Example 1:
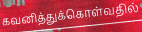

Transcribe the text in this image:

கவனித்துக்கொள்வதில்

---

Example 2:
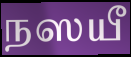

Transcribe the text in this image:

நஸயீ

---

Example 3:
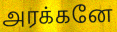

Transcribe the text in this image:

அரக்கனே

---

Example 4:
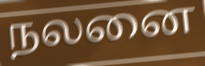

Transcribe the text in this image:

நலனை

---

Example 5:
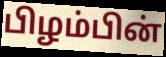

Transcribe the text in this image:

பிழம்பின்